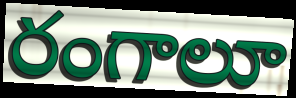
రంగాలూ